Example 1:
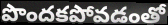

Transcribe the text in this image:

పొందకపోవడంతో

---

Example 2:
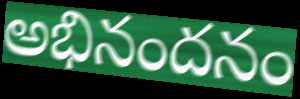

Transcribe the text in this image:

అభినందనం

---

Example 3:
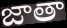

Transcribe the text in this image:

జాతా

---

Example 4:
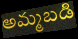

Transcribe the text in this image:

అమ్మబడి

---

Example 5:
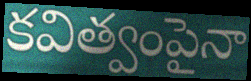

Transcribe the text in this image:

కవిత్వంపైనా